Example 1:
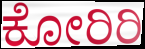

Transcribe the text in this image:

ಕೋರಿರಿ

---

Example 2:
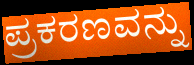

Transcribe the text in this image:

ಪ್ರಕರಣವನ್ನು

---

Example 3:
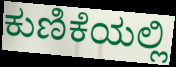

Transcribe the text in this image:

ಕುಣಿಕೆಯಲ್ಲಿ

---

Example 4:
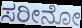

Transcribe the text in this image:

ಸರೀನೋ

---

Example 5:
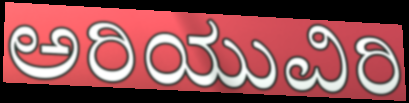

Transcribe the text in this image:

ಅರಿಯುವಿರಿ